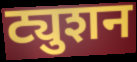
ट्युशन